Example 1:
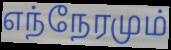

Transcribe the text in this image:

எந்நேரமும்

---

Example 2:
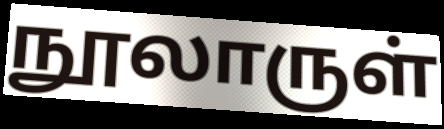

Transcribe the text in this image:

நூலாருள்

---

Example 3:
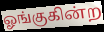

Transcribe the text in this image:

ஓங்குகின்ற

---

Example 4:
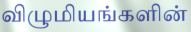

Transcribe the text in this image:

விழுமியங்களின்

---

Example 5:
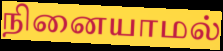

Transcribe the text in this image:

நினையாமல்